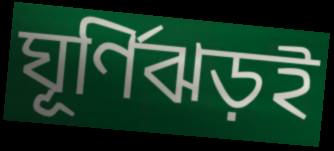
ঘূর্ণিঝড়ই